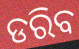
ଡରିବ